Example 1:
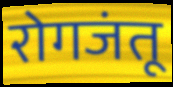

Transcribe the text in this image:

रोगजंतू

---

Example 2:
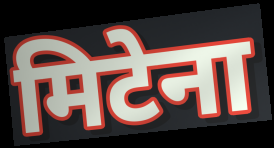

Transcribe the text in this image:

मिटेना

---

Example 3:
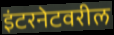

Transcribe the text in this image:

इंटरनेटवरील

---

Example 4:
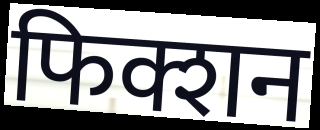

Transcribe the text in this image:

फिक्‍शन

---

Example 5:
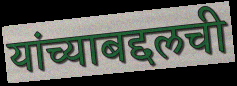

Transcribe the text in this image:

यांच्याबद्दलची